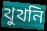
থুথনি